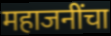
महाजनींचा